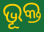
ଭୂକ୍ତ